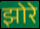
झोरे